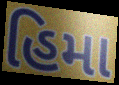
હિમા